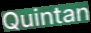
Quintan